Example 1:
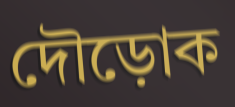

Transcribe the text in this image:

দৌড়োক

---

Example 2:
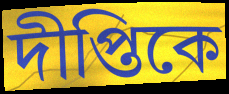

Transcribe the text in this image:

দীপ্তিকে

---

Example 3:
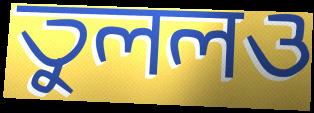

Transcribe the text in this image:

তুললও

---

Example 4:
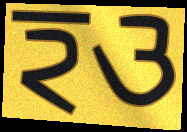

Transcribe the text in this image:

হও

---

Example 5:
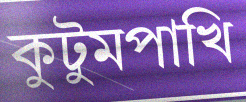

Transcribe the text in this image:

কুটুমপাখি